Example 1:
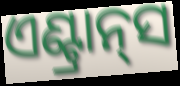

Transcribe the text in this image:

ଏଣ୍ଟ୍ରାନ୍‌ସ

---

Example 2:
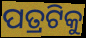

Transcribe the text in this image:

ପତ୍ରଟିକୁ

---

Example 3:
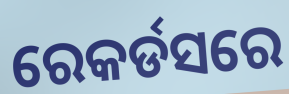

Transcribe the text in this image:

ରେକର୍ଡସରେ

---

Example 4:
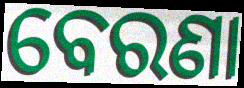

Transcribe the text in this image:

ବେରଣା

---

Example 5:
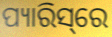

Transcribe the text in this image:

ପ୍ୟାରିସ୍‌ରେ